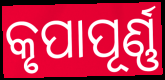
କୃପାପୂର୍ଣ୍ଣ